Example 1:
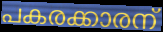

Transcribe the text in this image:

പകരക്കാരന്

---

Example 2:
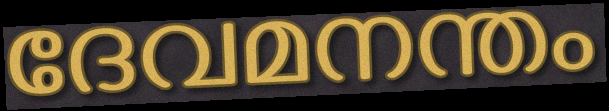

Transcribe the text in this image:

ദേവമനന്തം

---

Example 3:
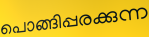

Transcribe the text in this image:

പൊങ്ങിപ്പരക്കുന്ന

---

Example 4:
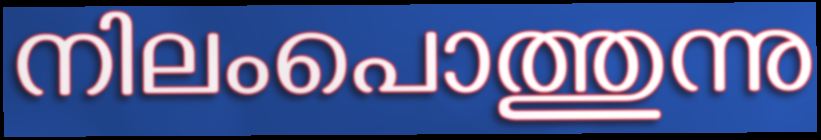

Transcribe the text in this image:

നിലംപൊത്തുന്നു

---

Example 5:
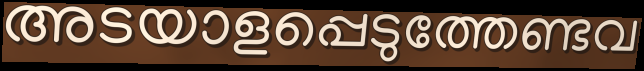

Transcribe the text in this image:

അടയാളപ്പെടുത്തേണ്ടവ